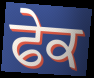
ਫੇਕ